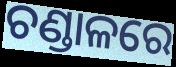
ଚଣ୍ଡାଳରେ